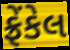
ફ્રેંકેલ